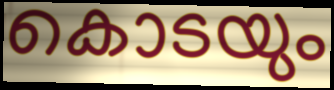
കൊടയും